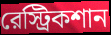
রেস্ট্রিকশান